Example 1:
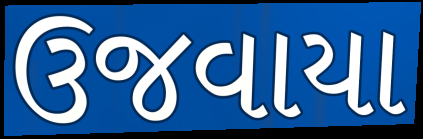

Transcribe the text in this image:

ઉજવાયા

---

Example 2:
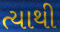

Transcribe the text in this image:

ત્યાથી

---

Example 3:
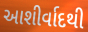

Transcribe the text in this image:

આશીર્વાદથી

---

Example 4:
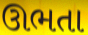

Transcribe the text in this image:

ઊભતા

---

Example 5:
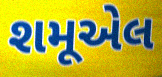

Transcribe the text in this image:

શમૂએલ